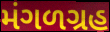
મંગળગ્રહ